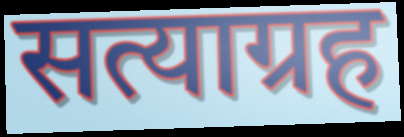
सत्याग्रह